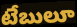
టేబులూ